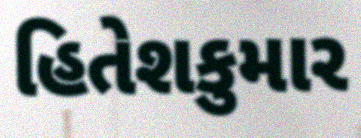
હિતેશકુમાર